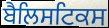
ਬੈਲਿਸਟਿਕਸ